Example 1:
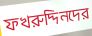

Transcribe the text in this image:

ফখরুদ্দিনদের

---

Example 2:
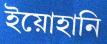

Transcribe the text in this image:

ইয়োহানি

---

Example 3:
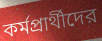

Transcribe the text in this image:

কর্মপ্রার্থীদের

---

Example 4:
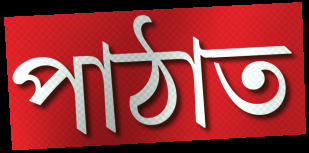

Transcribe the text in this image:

পাঠাত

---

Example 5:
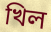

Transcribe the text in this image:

খিল